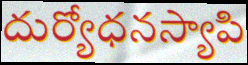
దుర్యోధనస్యాపి